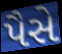
પૈસે